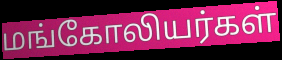
மங்கோலியர்கள்